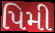
પિમી